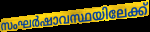
സംഘർഷാവസ്ഥയിലേക്ക്